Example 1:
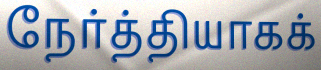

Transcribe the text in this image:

நேர்த்தியாகக்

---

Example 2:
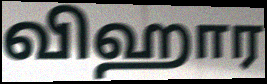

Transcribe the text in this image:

விஹார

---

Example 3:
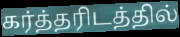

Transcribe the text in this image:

கர்த்தரிடத்தில்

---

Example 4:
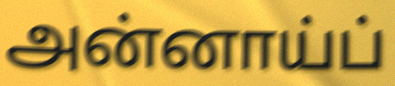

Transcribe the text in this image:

அன்னாய்ப்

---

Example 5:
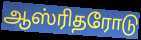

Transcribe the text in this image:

ஆஸ்ரிதரோடு